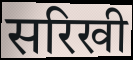
सरिखी